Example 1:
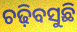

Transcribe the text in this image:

ଚଢ଼ିବସୁଛି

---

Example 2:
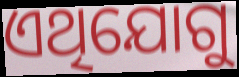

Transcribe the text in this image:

ଏଥିଯୋଗୁ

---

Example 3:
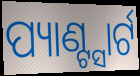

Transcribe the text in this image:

ପ୍ୟାଣ୍ଟ୍ସାର୍ଟ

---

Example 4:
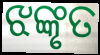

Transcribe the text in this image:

ଝଙ୍କୃତ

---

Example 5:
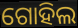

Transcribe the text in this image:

ଗୋହିଲ